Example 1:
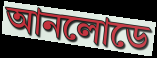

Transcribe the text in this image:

আনলোডে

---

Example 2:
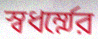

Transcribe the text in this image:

স্বধর্ম্মের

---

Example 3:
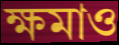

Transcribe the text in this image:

ক্ষমাও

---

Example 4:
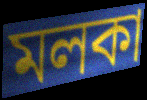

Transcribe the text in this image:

মলকা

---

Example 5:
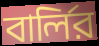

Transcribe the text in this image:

বার্লির